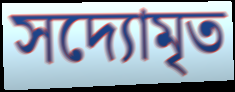
সদ্যোমৃত